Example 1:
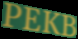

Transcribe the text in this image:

PEKB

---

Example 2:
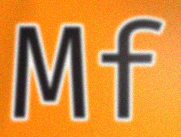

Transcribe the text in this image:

Mf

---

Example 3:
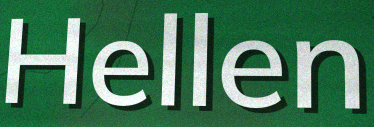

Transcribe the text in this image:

Hellen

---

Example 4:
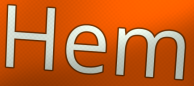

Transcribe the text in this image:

Hem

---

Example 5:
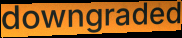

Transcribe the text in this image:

downgraded